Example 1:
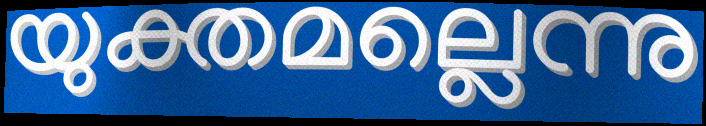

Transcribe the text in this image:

യുക്തമല്ലെന്നു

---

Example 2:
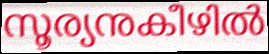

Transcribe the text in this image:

സൂര്യനുകീഴിൽ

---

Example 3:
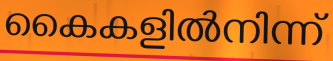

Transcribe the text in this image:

കൈകളിൽനിന്ന്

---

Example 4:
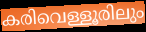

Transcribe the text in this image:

കരിവെള്ളൂരിലും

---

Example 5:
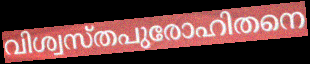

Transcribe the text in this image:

വിശ്വസ്തപുരോഹിതനെ